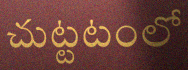
చుట్టటంలో